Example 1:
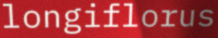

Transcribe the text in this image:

longiflorus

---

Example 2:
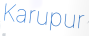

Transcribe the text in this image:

Karupur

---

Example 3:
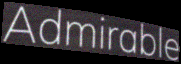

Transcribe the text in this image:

Admirable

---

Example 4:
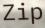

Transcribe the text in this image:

Zip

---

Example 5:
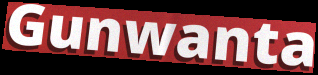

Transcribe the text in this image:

Gunwanta